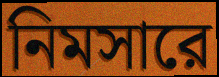
নিমসারে